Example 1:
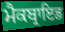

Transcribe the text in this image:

ਮੈਕਬ੍ਰਾਇਡ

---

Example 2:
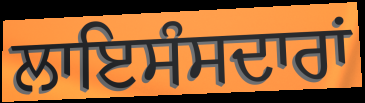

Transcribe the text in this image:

ਲਾਇਸੰਸਦਾਰਾਂ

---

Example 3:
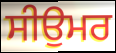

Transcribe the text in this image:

ਸੀਉਮਰ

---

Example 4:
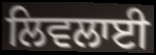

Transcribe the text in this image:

ਲਿਵਲਾਈ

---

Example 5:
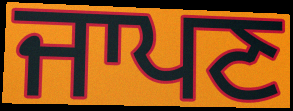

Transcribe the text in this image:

ਜਾਪਣ